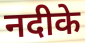
नदीके